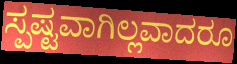
ಸ್ಪಷ್ಟವಾಗಿಲ್ಲವಾದರೂ